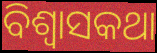
ବିଶ୍ଵାସକଥା